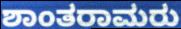
ಶಾಂತರಾಮರು